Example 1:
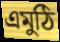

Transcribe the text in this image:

এমুঠি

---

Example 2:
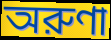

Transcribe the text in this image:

অৰুণা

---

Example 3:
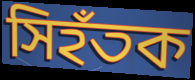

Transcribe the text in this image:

সিহঁতক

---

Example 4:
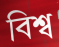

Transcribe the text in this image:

বিশ্ব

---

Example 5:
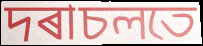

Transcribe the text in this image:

দৰাচলতে